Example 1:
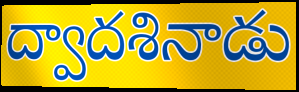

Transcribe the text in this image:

ద్వాదశినాడు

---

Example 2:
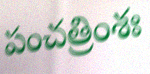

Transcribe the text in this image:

పంచత్రింశః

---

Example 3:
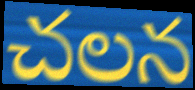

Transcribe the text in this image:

చలన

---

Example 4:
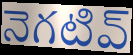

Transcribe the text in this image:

నెగటివ్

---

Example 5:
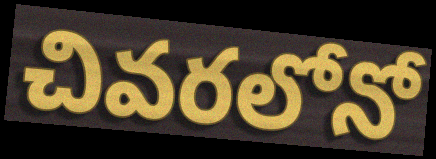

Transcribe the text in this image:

చివరలోనో